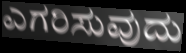
ಎಗರಿಸುವುದು